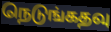
நெடுங்கதவு